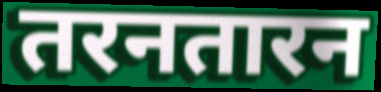
तरनतारन